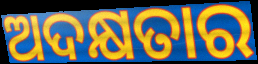
ଅଦକ୍ଷତାର